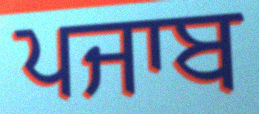
ਪਜਾਬ